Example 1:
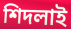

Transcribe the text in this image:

শিদলাই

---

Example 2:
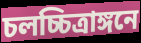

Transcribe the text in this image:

চলচ্চিত্রাঙ্গনে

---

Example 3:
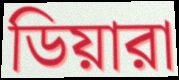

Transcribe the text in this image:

ডিয়ারা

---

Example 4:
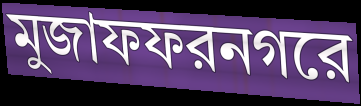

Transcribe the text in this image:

মুজাফফরনগরে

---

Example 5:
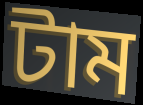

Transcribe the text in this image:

টাম